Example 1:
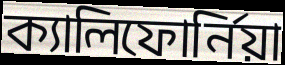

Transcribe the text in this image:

ক্যালিফোর্নিয়া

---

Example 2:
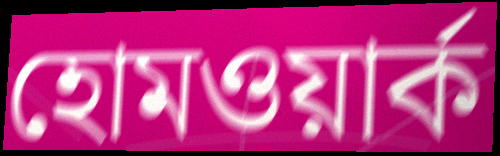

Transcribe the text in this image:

হোমওয়ার্ক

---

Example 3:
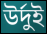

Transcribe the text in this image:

উর্দুই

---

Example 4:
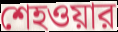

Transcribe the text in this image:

শেহওয়ার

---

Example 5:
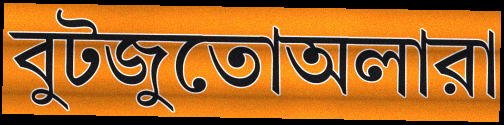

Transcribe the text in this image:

বুটজুতোঅলারা